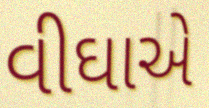
વીઘાએ